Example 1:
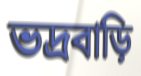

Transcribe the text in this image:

ভদ্রবাড়ি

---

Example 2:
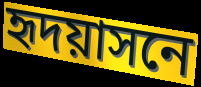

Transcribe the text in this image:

হৃদয়াসনে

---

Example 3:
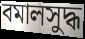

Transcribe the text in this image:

বমালসুদ্ধ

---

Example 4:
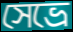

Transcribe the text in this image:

সেভ্রে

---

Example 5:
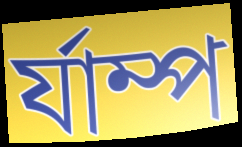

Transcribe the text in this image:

র্যাম্প